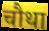
चौथा